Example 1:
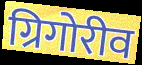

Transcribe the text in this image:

ग्रिगोरीव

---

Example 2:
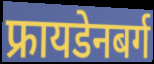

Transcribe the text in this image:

फ्रायडेनबर्ग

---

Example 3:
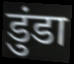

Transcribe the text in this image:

डुंडा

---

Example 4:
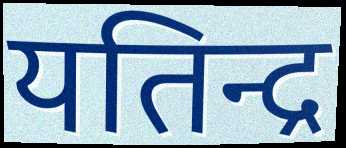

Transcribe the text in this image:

यतिन्द्र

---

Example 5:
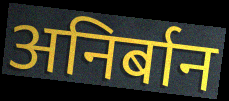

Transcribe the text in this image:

अनिर्बान